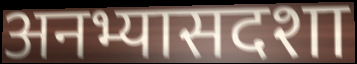
अनभ्यासदशा